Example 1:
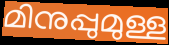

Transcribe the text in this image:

മിനുപ്പുമുള്ള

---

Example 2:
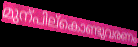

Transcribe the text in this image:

മുന്പില്കൊണ്ടുവരണം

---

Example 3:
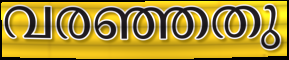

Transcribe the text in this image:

വരഞ്ഞതു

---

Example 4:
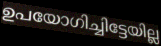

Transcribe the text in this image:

ഉപയോഗിച്ചിട്ടേയില്ല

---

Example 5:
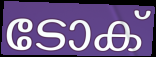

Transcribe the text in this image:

ടോക്